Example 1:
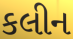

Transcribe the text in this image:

કલીન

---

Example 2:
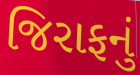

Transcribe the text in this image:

જિરાફનું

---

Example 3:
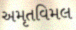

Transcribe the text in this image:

અમૃતવિમલ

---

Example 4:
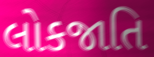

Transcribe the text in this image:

લોકજાતિ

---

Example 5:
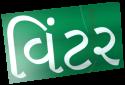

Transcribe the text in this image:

વિંટર